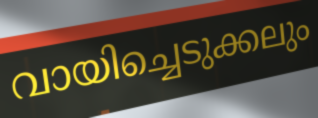
വായിച്ചെടുക്കലും